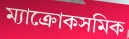
ম্যাক্রোকসমিক